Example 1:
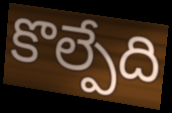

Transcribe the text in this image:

కొల్పేది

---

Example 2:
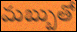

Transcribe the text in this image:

మబ్బుతో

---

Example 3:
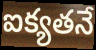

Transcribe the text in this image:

ఐక్యతనే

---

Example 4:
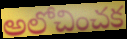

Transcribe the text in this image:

అలోచించక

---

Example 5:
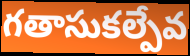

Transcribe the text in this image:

గతాసుకల్పేవ